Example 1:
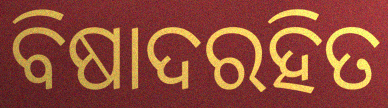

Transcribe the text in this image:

ବିଷାଦରହିତ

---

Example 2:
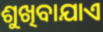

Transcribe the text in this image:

ଶୁଖିବାଯାଏ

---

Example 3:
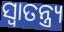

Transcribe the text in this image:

ସ୍ଵାତନ୍ତ୍ର୍ୟ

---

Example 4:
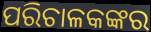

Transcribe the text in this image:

ପରିଚାଳକଙ୍କର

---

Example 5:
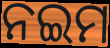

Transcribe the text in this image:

ନଇମ